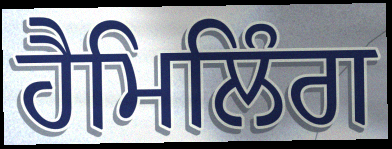
ਹੈਮਿਲਿੰਗ